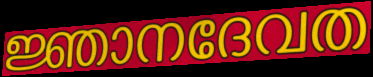
ജ്ഞാനദേവത